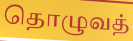
தொழுவத்